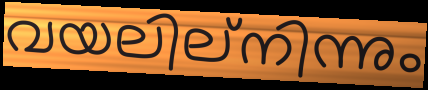
വയലില്നിന്നും